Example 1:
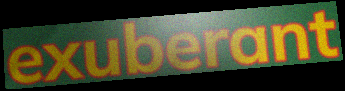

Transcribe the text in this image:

exuberant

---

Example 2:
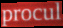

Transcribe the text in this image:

procul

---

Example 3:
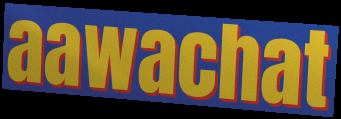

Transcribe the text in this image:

aawachat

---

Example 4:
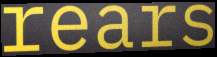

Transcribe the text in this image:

rears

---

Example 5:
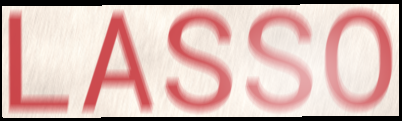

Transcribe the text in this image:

LASSO